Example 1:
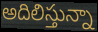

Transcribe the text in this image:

అదిలిస్తున్నా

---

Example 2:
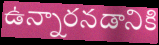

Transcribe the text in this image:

ఉన్నారనడానికి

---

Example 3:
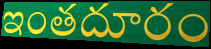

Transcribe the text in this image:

ఇంతదూరం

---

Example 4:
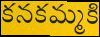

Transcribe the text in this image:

కనకమ్మకి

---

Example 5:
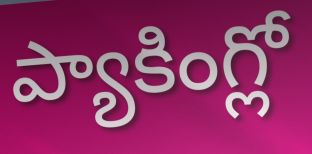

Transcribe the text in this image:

ప్యాకింగ్లో